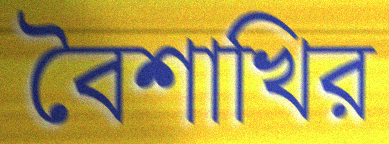
বৈশাখির